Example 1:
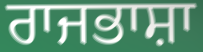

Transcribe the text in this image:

ਰਾਜਭਾਸ਼ਾ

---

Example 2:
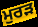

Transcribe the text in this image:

ਮੁਰੜ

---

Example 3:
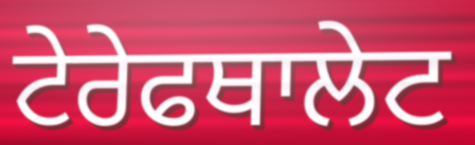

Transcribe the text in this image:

ਟੇਰੇਫਥਾਲੇਟ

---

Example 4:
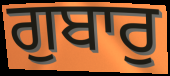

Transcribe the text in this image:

ਗੁਬਾਰੁ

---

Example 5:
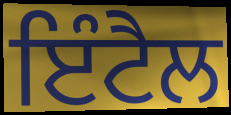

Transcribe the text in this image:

ਇੰਟੈਲ